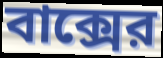
বাক্সের